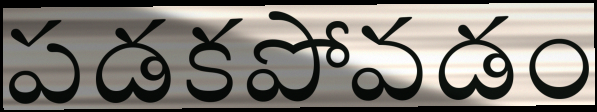
పడకపోవడం